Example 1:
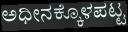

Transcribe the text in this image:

ಅಧೀನಕ್ಕೊಳಪಟ್ಟ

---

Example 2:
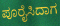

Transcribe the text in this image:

ಪೂರೈಸಿದಾಗ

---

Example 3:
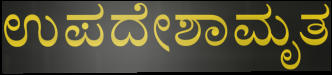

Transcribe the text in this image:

ಉಪದೇಶಾಮೃತ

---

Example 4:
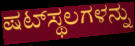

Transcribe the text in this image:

ಷಟ್‌ಸ್ಥಲಗಳನ್ನು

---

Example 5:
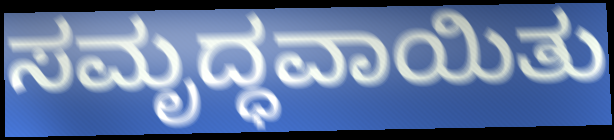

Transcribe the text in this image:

ಸಮೃದ್ಧವಾಯಿತು